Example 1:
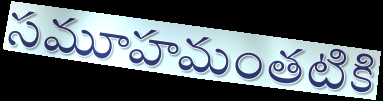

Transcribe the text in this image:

సమూహమంతటికి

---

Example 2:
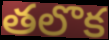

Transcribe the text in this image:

తలొక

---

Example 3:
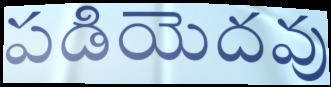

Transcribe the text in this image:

పడియెదవు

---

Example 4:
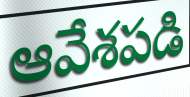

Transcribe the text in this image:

ఆవేశపడి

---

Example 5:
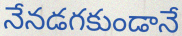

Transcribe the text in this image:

నేనడగకుండానే